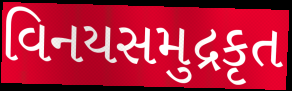
વિનયસમુદ્રકૃત